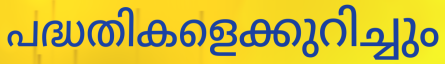
പദ്ധതികളെക്കുറിച്ചും